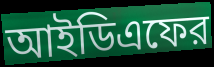
আইডিএফের